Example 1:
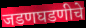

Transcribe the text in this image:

जडणघडणीचे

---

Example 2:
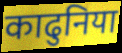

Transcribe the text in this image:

काढुनिया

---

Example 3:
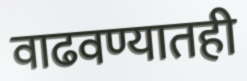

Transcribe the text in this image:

वाढवण्यातही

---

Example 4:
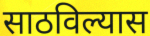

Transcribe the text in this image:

साठविल्यास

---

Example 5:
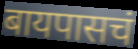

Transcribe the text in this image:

बायपासचं